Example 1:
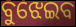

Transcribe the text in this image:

ବୁଝେଇବ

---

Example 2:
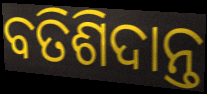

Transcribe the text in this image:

ବତିଶିଦାନ୍ତ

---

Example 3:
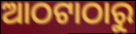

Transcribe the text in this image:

ଆଠଟାଠାରୁ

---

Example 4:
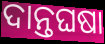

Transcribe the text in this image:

ଦାନ୍ତଘଷା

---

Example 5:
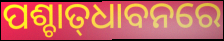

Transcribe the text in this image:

ପଶ୍ଚାତ୍‍ଧାବନରେ